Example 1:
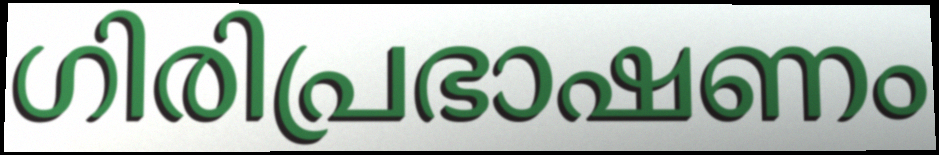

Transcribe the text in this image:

ഗിരിപ്രഭാഷണം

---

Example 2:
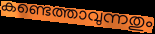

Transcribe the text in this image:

കണ്ടെത്താവുന്നതും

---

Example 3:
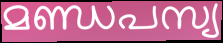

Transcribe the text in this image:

മണ്ഡപസ്യ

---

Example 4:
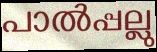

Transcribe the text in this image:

പാൽപ്പല്ലു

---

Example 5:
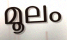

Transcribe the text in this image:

മൂലം